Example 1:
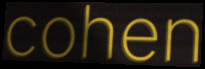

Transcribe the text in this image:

cohen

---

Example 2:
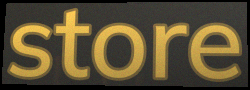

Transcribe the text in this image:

store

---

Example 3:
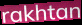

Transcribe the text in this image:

rakhtan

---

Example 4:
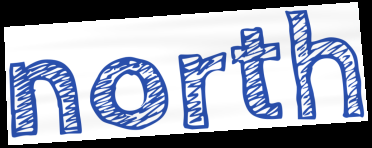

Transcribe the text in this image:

north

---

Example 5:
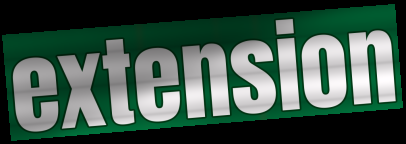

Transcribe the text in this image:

extension